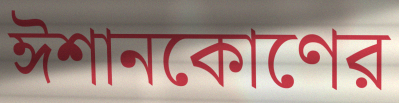
ঈশানকোণের